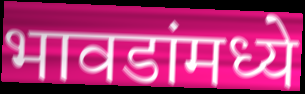
भावडांमध्ये